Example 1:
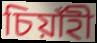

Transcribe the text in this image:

চিয়াঁহী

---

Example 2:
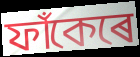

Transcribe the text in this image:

ফাঁকেৰে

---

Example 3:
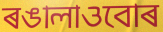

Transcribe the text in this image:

ৰঙালাওবোৰ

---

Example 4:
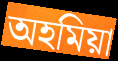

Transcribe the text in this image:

অহমিয়া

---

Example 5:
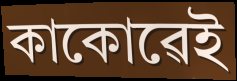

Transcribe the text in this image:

কাকোৱেই